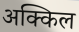
अक्किल